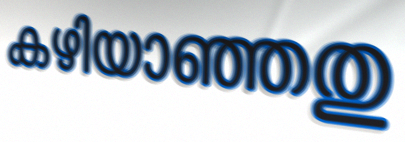
കഴിയാഞ്ഞതു